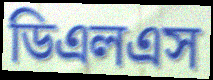
ডিএলএস